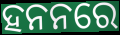
ହନନରେ